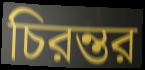
চিরন্তর